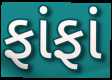
ફાંફાં